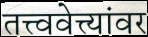
तत्त्ववेत्त्यांवर